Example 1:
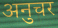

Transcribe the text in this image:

अनुचर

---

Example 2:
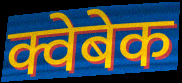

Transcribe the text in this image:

क्वेबेक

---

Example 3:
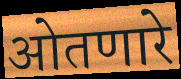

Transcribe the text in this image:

ओतणारे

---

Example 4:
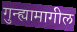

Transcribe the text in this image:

गुन्ह्यामागील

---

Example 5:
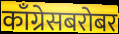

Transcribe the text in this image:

काँग्रेसबरोबर